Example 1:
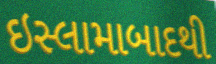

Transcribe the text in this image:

ઇસ્લામાબાદથી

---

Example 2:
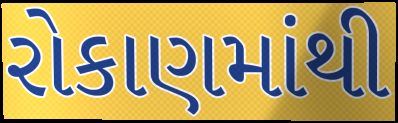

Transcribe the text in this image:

રોકાણમાંથી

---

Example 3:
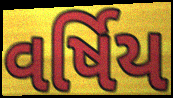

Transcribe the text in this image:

વર્ષિય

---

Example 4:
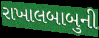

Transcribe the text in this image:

રાખાલબાબુની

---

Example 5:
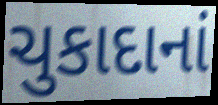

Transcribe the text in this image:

ચુકાદાનાં